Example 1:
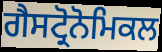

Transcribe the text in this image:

ਗੈਸਟ੍ਰੋਨੋਮਿਕਲ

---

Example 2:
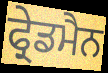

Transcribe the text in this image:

ਫ੍ਰੇਡਮੈਨ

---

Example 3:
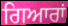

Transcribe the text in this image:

ਗਿਆਰਾਂ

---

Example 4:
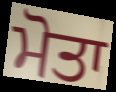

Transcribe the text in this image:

ਮੋਤਾ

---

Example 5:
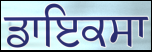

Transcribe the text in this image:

ਡਾਇਕਸਾ